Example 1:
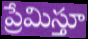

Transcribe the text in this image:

ప్రేమిస్తూ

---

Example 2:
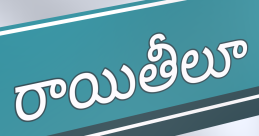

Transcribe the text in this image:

రాయితీలూ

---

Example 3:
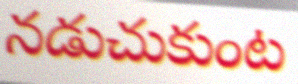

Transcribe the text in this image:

నడుచుకుంట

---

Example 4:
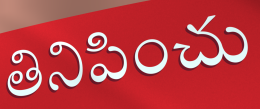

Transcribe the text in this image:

తినిపించు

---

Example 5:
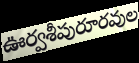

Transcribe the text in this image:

ఊర్వశీపురూరవుల